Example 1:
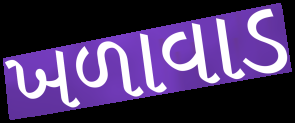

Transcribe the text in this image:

ખળાવાડ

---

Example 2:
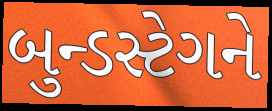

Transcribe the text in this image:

બુન્ડસ્ટેગને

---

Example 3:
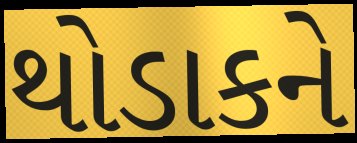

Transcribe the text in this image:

થોડાકને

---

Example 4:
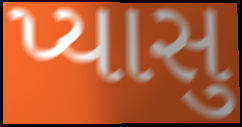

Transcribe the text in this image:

પ્યાસુ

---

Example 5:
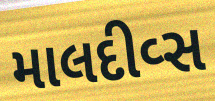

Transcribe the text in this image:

માલદીવ્સ